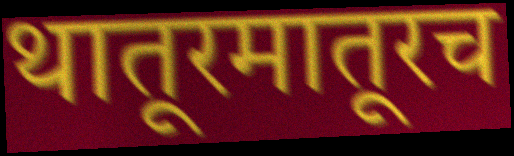
थातूरमातूरच